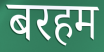
बरहम